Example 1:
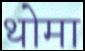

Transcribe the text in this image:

थोमा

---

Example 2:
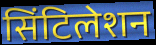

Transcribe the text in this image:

सिंटिलेशन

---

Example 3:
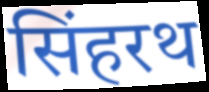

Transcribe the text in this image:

सिंहरथ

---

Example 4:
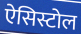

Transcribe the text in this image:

ऐसिस्टोल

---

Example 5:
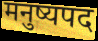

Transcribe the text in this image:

मनुष्यपद